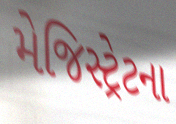
મેજિસ્ટ્રેટના